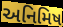
અનિમિષ